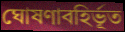
ঘোষণাবহির্ভূত